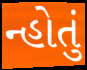
ન્હોતું